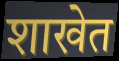
शाखेत